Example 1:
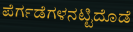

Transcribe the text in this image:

ಪೆರ್ಗಡೆಗಳನಟ್ಟಿದೊಡೆ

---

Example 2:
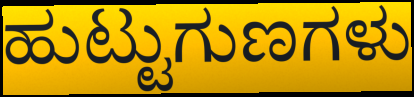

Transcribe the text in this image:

ಹುಟ್ಟುಗುಣಗಳು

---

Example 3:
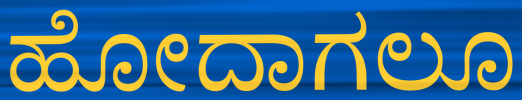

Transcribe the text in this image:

ಹೋದಾಗಲೂ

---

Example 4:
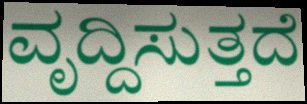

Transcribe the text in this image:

ವೃದ್ದಿಸುತ್ತದೆ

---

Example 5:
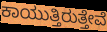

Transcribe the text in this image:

ಕಾಯುತ್ತಿರುತ್ತೇವೆ